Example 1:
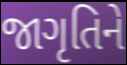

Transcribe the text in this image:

જાગૃતિને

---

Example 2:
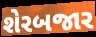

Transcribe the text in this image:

શેરબજાર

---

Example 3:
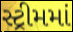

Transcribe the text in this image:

સ્ટ્રીમમાં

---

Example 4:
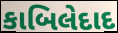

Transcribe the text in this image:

કાબિલેદાદ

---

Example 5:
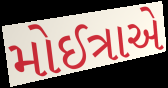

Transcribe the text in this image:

મોઈત્રાએ